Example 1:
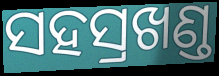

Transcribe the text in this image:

ସହସ୍ରଖଣ୍ଡ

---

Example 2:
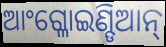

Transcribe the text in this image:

ଆଂଗ୍ଳୋଇଣ୍ଡିଆନ୍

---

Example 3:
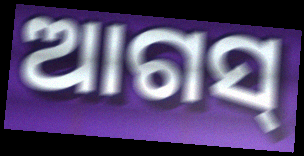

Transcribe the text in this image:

ଆଗସ୍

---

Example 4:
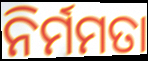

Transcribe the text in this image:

ନିର୍ମମତା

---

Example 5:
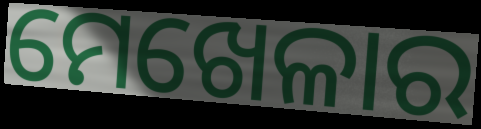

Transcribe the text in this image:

ମେଖେଳାର